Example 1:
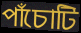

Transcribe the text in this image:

পাঁচোটি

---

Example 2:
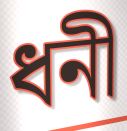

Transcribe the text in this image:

ধনী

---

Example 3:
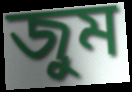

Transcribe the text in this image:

জুম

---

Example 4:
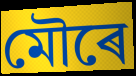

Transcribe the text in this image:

মৌৰে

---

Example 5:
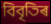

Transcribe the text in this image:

বিবৃতিৰ